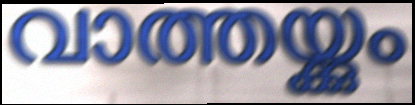
വാത്തയ്ക്കും